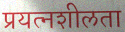
प्रयत्नशीलता